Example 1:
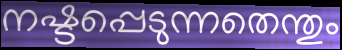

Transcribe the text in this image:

നഷ്ടപ്പെടുന്നതെന്തും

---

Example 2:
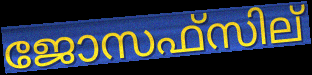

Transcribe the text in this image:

ജോസഫ്സില്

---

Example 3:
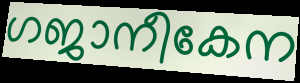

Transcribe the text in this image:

ഗജാനീകേന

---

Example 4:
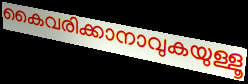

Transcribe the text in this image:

കൈവരിക്കാനാവുകയുള്ളൂ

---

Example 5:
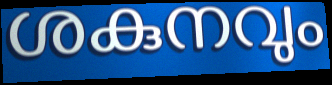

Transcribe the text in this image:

ശകുനവും